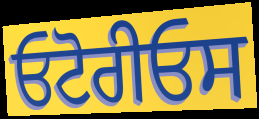
ਓਟੋਰੀਓਸ